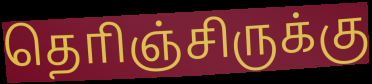
தெரிஞ்சிருக்கு